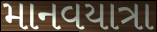
માનવયાત્રા